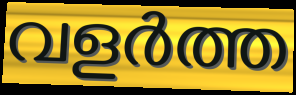
വളർത്ത